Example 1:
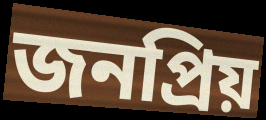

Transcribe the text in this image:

জনপ্রিয়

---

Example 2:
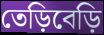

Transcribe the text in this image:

তেড়িবেড়ি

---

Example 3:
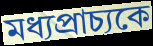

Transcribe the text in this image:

মধ্যপ্রাচ্যকে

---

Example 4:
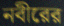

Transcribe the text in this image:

নবীরের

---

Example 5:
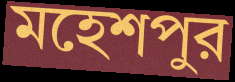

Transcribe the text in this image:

মহেশপুর